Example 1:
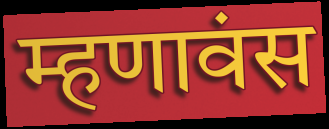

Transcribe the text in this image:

म्हणावंस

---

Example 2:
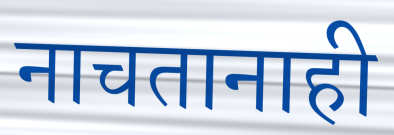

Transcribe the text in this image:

नाचतानाही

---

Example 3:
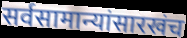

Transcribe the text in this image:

सर्वसामान्यांसारखंच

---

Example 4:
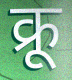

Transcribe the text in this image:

क्रू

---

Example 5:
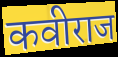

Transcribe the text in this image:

कवीराज